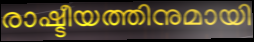
രാഷ്ടീയത്തിനുമായി